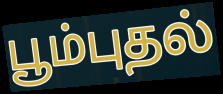
பூம்புதல்